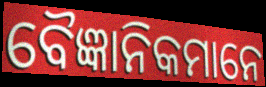
ବୈଜ୍ଞାନିକମାନେ